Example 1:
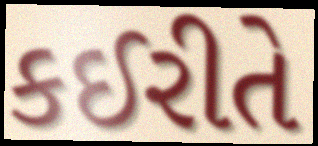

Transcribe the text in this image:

કઈરીતે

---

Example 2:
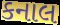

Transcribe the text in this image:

કનાલ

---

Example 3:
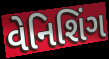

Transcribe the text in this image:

વેનિશિંગ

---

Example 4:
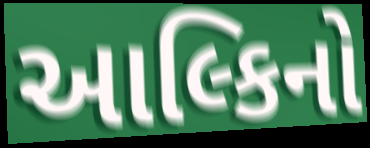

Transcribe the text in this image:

આલ્કિનો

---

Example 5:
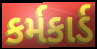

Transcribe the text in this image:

કર્મકાર્ડ